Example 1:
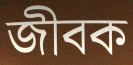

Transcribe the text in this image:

জীবক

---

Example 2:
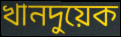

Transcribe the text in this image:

খানদুয়েক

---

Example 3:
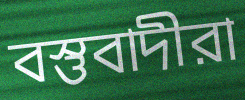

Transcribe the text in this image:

বস্তুবাদীরা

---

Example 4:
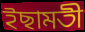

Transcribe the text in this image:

ইছামতী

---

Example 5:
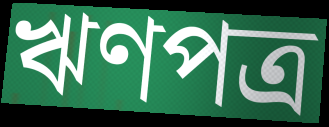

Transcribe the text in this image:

ঋণপত্র